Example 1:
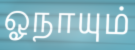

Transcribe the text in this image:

ஓநாயும்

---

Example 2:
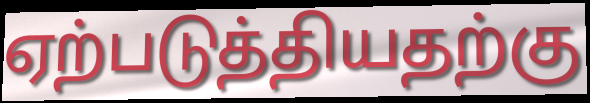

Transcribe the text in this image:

ஏற்படுத்தியதற்கு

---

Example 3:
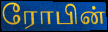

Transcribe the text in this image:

ரோபின்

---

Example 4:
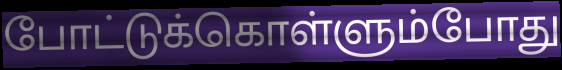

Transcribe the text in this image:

போட்டுக்கொள்ளும்போது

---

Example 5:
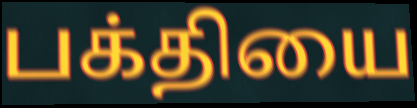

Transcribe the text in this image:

பக்தியை